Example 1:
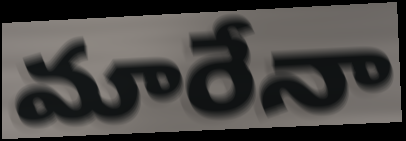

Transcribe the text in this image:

మారేనా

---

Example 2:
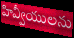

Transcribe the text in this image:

హివ్వీయులను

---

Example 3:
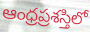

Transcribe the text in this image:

ఆంధ్రప్రశస్తిలో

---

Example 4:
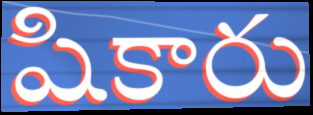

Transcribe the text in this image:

షికారు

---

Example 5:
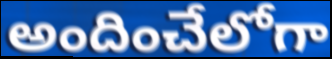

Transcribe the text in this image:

అందించేలోగా